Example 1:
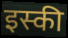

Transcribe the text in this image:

इस्की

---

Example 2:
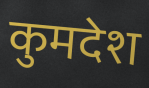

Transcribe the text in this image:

कुमदेश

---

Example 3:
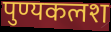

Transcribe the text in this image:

पुण्यकलश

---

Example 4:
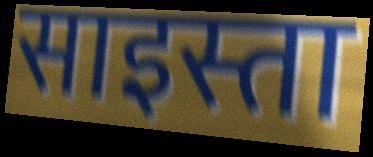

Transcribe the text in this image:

साइस्ता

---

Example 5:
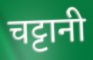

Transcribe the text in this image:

चट्टानी